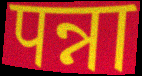
पन्ना